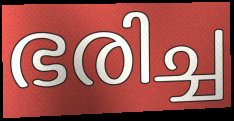
ഭരിച്ച